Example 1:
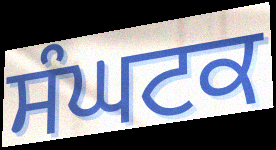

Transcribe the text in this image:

ਸੰਘਟਕ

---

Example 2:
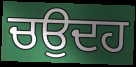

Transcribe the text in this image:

ਚਉਦਹ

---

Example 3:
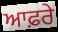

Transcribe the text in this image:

ਆਫ਼ਰੇ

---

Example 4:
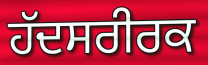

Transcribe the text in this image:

ਹੱਦਸਰੀਰਕ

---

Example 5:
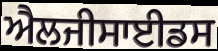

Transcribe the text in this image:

ਐਲਜੀਸਾਈਡਸ